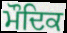
ਮੌਦਿਕ